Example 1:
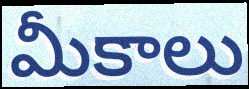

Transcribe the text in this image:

మీకాలు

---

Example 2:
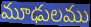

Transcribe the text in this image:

మూఢులము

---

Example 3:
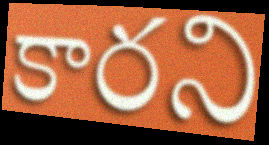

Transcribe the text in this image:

కారని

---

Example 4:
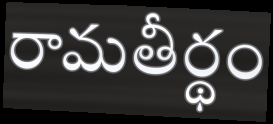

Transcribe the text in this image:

రామతీర్థం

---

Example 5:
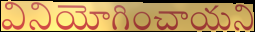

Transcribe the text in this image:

వినియోగించాయని